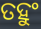
ତହୁଂ